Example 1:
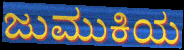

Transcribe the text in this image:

ಜುಮುಕಿಯ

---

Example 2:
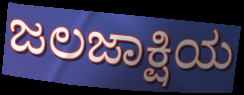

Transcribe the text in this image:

ಜಲಜಾಕ್ಷಿಯ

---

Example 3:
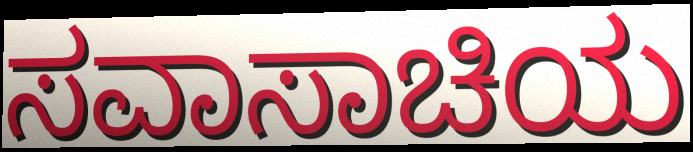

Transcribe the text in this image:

ಸವಾಸಾಚಿಯ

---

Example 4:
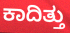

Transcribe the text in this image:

ಕಾದಿತ್ತು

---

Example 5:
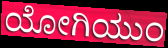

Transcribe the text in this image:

ಯೋಗಿಯುಂ